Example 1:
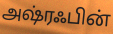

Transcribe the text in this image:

அஷ்ரஃபின்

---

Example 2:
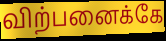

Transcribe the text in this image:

விற்பனைக்கே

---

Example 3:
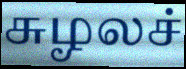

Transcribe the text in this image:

சுழலச்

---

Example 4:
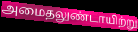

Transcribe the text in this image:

அமைதலுண்டாயிற்று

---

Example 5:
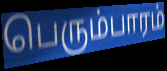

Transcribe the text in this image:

பெரும்பாரம்